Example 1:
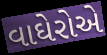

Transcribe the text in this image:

વાઘેરોએ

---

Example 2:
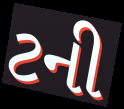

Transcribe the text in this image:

ટની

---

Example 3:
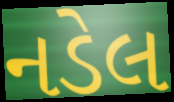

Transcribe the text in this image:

નડેલ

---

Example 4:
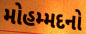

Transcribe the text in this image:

મોહમ્મદનો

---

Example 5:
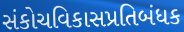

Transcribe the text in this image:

સંકોચવિકાસપ્રતિબંધક